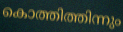
കൊത്തിത്തിന്നും